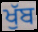
ਖੁੱਬ